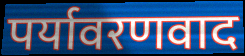
पर्यावरणवाद